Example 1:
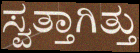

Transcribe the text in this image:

ಸ್ವತ್ತಾಗಿತ್ತು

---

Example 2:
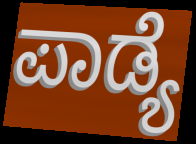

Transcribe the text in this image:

ಪಾಡ್ಯೆ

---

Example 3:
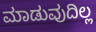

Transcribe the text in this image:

ಮಾಡುವುದಿಲ್ಲ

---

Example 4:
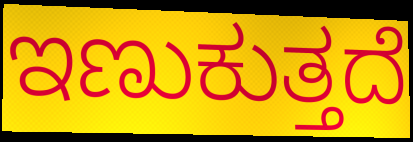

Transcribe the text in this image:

ಇಣುಕುತ್ತದೆ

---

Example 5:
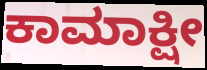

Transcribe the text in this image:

ಕಾಮಾಕ್ಷೀ